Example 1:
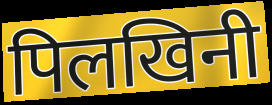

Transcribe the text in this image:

पिलखिनी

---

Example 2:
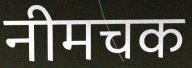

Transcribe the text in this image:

नीमचक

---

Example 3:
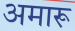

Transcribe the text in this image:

अमारू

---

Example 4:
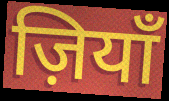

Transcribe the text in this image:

ज़ियाँ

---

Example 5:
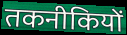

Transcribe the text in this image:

तकनीकियों